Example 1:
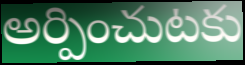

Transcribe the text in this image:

అర్పించుటకు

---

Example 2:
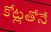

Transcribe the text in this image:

కోట్లతోనే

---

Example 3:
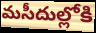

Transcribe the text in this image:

మసీదుల్లోకి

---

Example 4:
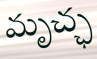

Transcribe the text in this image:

మృచ్ఛ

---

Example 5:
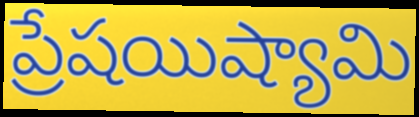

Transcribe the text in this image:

ప్రేషయిష్యామి